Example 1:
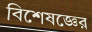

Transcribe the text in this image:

বিশেষজ্ঞের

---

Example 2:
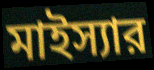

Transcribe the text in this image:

মাইস্যার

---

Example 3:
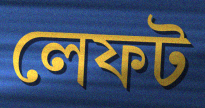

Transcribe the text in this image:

লেফট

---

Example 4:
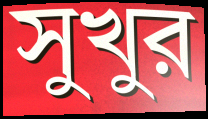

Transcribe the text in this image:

সুখুর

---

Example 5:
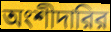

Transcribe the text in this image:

অংশীদারির